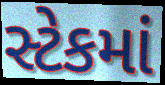
સ્ટેકમાં